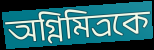
অগ্নিমিত্রকে